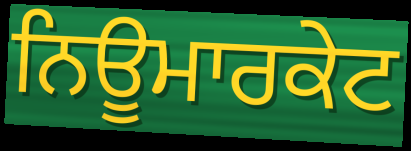
ਨਿਊਮਾਰਕੇਟ